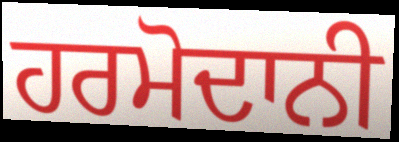
ਹਰਮੋਦਾਨੀ